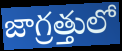
జాగ్రత్తులో